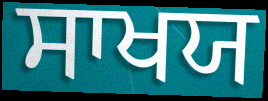
ਸਾਖਯ